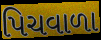
પિચવાળા